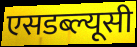
एसडब्ल्यूसी